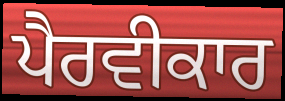
ਪੈਰਵੀਕਾਰ